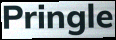
Pringle